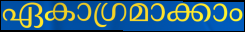
ഏകാഗ്രമാക്കാം